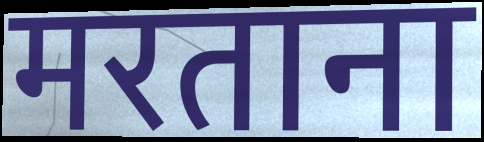
मरताना